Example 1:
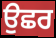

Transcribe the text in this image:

ਉਛਰ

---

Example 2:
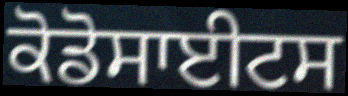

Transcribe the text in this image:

ਕੋਡੋਸਾਈਟਸ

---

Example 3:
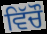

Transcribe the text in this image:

ਵਿੱਚੌ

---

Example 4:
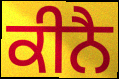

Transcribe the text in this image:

ਕੀਨੈ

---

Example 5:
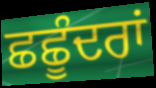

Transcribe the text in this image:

ਛਛੂੰਦਰਾਂ